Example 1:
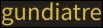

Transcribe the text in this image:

gundiatre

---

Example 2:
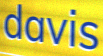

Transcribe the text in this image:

davis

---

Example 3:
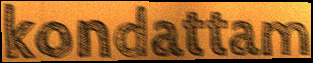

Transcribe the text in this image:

kondattam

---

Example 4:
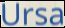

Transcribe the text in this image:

Ursa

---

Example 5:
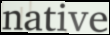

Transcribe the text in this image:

native